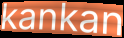
kankan